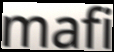
mafi